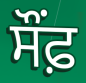
ਸੌਂਫ਼